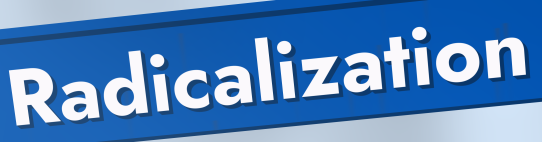
Radicalization